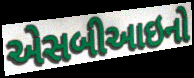
એસબીઆઇનો